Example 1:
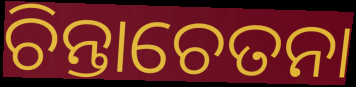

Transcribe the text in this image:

ଚିନ୍ତାଚେତନା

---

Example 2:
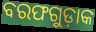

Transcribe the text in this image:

ବରଫଗୁଡ଼ାକ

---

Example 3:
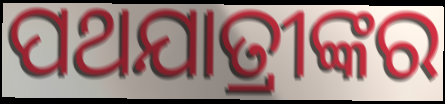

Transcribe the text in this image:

ପଥଯାତ୍ରୀଙ୍କର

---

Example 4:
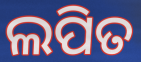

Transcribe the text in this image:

ଲପିତ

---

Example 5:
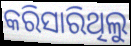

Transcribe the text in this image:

କରିସାରିଥିଲୁ